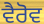
ਵੈਰੋਵ